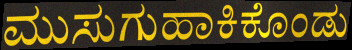
ಮುಸುಗುಹಾಕಿಕೊಂಡು